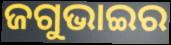
ଜଗୁଭାଇର